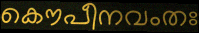
കൌപീനവംതഃ